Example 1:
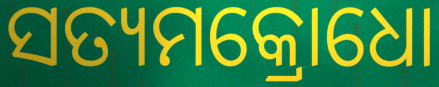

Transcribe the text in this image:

ସତ୍ୟମକ୍ରୋଧୋ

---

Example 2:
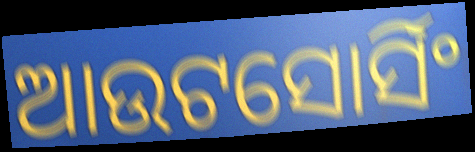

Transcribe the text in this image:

ଆଉଟସୋର୍ସିଂ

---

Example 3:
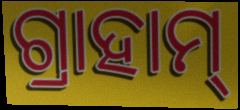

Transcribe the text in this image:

ଗ୍ରାହାମ୍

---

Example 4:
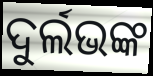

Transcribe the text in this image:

ଦୁର୍ଲଭଙ୍କ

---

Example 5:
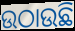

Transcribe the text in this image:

ଉଠାଉଛି